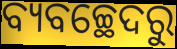
ବ୍ୟବଚ୍ଛେଦରୁ